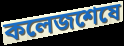
কলেজশেষে